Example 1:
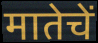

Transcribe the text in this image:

मातेचें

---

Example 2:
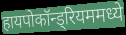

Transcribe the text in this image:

हायपोकॉन्ड्रियममध्ये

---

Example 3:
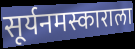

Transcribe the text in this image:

सूर्यनमस्काराला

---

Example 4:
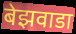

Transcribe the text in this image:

बेझवाडा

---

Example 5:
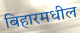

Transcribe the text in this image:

बिहारमधील